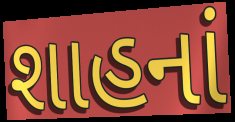
શાહનાં